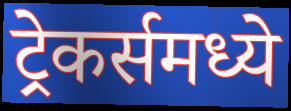
ट्रेकर्समध्ये